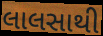
લાલસાથી